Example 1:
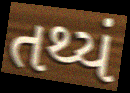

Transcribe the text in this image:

તથ્યં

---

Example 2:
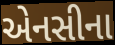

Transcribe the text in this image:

એનસીના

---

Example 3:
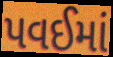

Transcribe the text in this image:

પવઈમાં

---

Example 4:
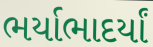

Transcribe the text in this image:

ભર્યાભાદર્યાં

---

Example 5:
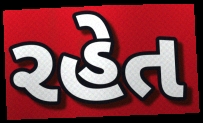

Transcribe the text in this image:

રહેત